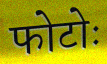
फोटोः